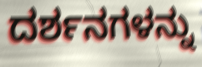
ದರ್ಶನಗಳನ್ನು